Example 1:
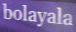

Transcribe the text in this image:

bolayala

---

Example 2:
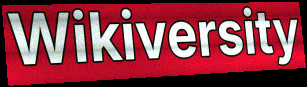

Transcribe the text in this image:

Wikiversity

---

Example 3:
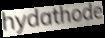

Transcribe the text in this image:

hydathode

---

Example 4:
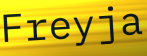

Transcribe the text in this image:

Freyja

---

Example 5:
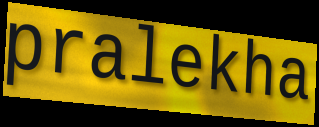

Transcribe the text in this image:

pralekha